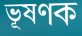
ভূষণক